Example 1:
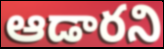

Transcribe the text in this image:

ఆడారని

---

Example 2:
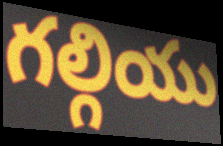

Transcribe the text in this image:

గల్గియు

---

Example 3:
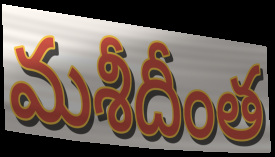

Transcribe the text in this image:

మశీదీంత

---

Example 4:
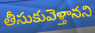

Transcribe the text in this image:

తీసుకువెళ్తానని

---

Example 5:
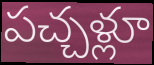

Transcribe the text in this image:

పచ్చళ్లూ